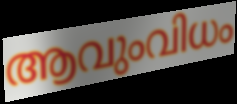
ആവുംവിധം